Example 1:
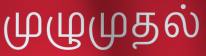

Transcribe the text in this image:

முழுமுதல்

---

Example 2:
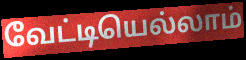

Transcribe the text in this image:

வேட்டியெல்லாம்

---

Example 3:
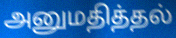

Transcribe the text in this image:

அனுமதித்தல்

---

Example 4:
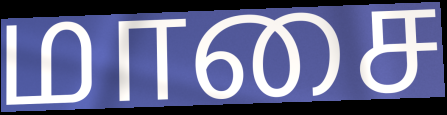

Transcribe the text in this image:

மாசை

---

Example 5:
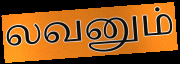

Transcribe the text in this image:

லவனும்